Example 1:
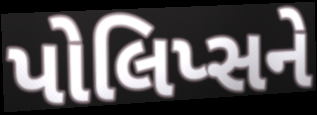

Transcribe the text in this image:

પોલિપ્સને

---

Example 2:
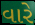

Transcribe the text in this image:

વારે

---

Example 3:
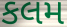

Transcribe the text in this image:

કલમ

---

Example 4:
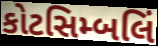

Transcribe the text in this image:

કોટસિમ્બલિં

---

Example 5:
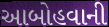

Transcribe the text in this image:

આબોહવાની